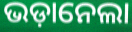
ଭଡ଼ାନେଲା